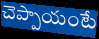
చెప్పాయంటే